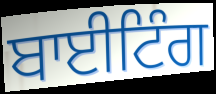
ਬਾਈਟਿੰਗ